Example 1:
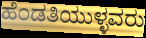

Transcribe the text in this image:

ಹೆಂಡತಿಯುಳ್ಳವರು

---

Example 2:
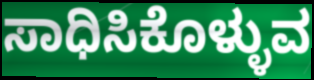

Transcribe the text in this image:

ಸಾಧಿಸಿಕೊಳ್ಳುವ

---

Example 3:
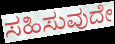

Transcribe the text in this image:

ಸಹಿಸುವುದೇ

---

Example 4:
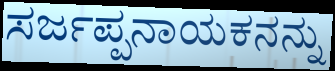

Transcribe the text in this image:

ಸರ್ಜಪ್ಪನಾಯಕನನ್ನು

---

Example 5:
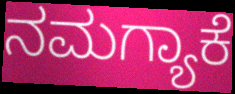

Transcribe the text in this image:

ನಮಗ್ಯಾಕೆ